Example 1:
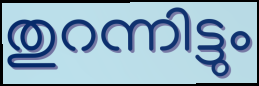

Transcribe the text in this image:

തുറന്നിട്ടും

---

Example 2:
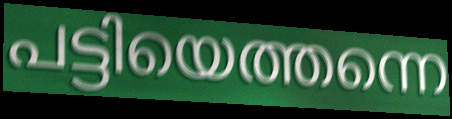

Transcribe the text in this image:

പട്ടിയെത്തന്നെ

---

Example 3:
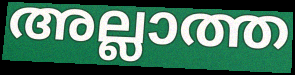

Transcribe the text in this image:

അല്ലാത്ത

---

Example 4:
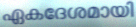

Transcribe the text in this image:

ഏകദേശമായി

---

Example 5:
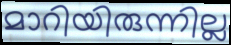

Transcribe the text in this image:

മാറിയിരുന്നില്ല